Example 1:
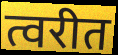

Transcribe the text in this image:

त्वरीत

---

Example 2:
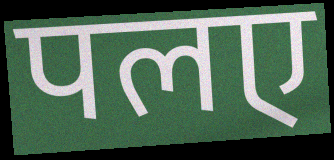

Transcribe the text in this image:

पलए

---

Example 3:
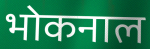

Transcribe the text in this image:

भोकनाल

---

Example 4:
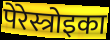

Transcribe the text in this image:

पेरेस्त्रोइका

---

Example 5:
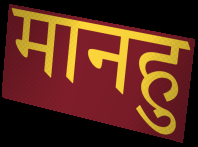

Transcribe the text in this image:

मानहु